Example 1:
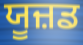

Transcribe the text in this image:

ਯੂਜ਼ਡ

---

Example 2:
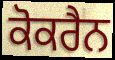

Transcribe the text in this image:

ਕੋਕਰੈਨ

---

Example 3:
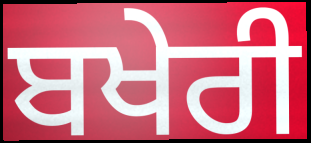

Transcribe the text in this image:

ਬਖੇਰੀ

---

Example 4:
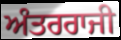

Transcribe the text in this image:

ਅੰਤਰਰਾਜੀ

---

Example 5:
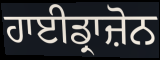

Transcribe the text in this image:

ਹਾਈਡ੍ਰਾਜ਼ੋਨ